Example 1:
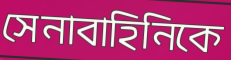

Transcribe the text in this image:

সেনাবাহিনিকে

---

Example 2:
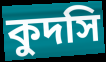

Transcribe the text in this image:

কুদসি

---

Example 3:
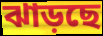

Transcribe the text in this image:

ঝাড়ছে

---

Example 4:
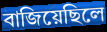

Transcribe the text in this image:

বাজিয়েছিলে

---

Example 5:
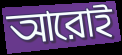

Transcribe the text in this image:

আরোই